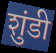
शुंडी